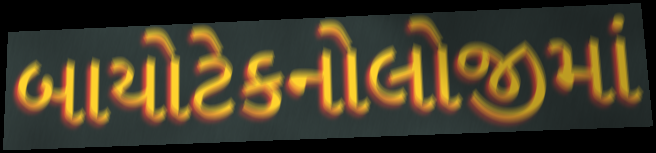
બાયોટેકનોલોજીમાં